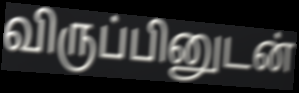
விருப்பினுடன்